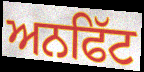
ਅਨਫਿੱਟ